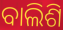
ବାଲିଶି